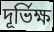
দূর্ভিক্ষ